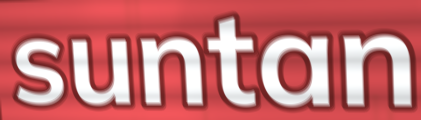
suntan